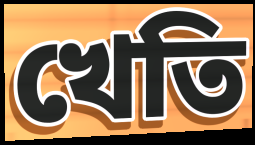
খেতি